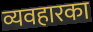
व्यवहारका